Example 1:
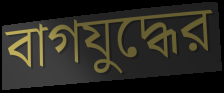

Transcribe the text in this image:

বাগযুদ্ধের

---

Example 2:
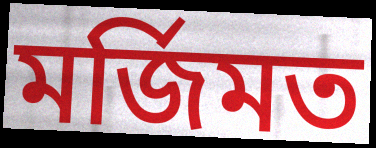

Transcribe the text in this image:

মর্জিমত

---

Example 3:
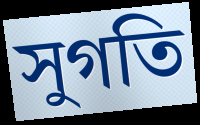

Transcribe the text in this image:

সুগতি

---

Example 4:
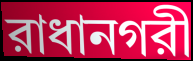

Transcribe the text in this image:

রাধানগরী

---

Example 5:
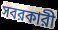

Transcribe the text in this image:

সবরকারী